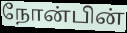
நோன்பின்